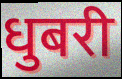
धुबरी